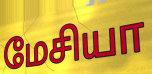
மேசியா